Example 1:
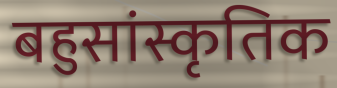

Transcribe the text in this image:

बहुसांस्कृतिक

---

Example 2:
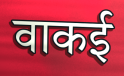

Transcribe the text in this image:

वाकई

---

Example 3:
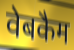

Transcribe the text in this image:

वेबकैम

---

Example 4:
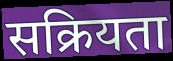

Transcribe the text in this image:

सक्रियता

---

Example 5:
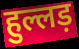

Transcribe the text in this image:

हुल्लड़